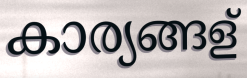
കാര്യങ്ങള്